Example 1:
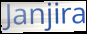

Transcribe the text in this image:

Janjira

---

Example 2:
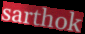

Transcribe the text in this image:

sarthok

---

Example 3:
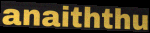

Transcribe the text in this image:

anaiththu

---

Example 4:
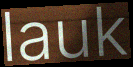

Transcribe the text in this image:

lauk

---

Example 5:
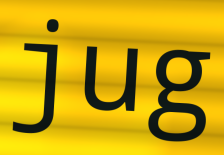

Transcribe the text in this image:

jug